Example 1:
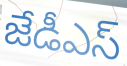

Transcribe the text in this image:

జేడీఎస్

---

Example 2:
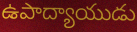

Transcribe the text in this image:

ఉపాద్యాయుడు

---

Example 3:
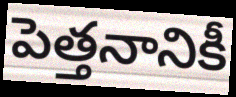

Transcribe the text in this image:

పెత్తనానికీ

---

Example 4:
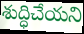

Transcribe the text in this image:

శుద్ధిచేయని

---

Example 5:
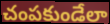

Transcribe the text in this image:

చంపకుండేలా